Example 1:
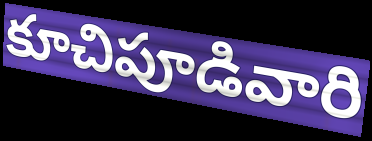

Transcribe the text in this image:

కూచిపూడివారి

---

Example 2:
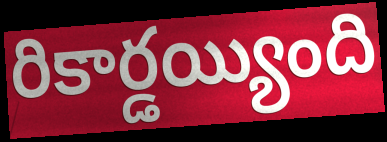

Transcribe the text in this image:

రికార్డయ్యింది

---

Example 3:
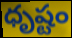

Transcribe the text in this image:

ధృష్టం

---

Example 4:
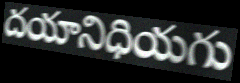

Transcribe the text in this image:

దయానిధియగు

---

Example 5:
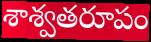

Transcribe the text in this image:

శాశ్వతరూపం